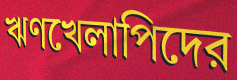
ঋণখেলাপিদের